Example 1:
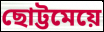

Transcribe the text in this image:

ছোট্টমেয়ে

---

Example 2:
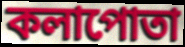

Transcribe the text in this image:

কলাপোতা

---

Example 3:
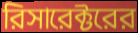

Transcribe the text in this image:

রিসারেক্টরের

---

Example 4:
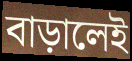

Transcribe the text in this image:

বাড়ালেই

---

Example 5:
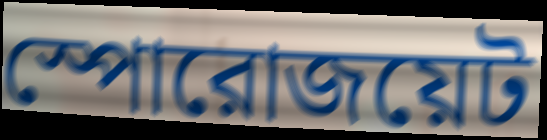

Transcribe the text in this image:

স্পোরোজয়েট